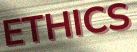
ETHICS